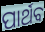
ପାର୍ଥବ